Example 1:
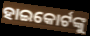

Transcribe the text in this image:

ହାଇକୋର୍ଟଙ୍କୁ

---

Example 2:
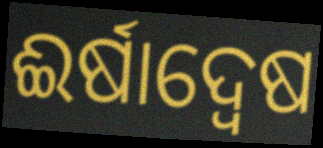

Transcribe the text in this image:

ଈର୍ଷାଦ୍ଵେଷ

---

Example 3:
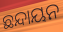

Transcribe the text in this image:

ଛନ୍ଦାୟନ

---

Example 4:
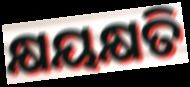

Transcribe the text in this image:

କ୍ଷୟକ୍ଷତି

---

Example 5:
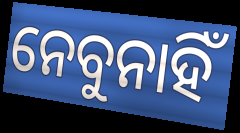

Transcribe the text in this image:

ନେବୁନାହିଁ